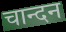
चान्दन